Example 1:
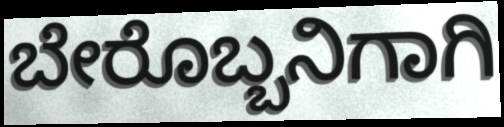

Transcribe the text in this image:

ಬೇರೊಬ್ಬನಿಗಾಗಿ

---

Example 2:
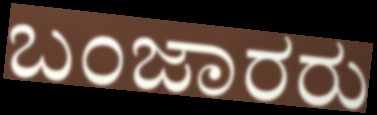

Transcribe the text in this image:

ಬಂಜಾರರು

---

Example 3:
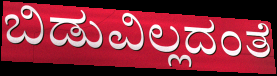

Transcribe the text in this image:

ಬಿಡುವಿಲ್ಲದಂತೆ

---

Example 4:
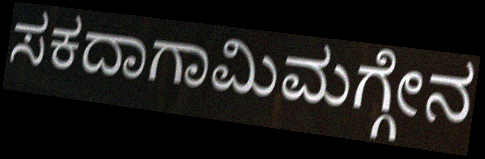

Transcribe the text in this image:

ಸಕದಾಗಾಮಿಮಗ್ಗೇನ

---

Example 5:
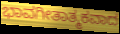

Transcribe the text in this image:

ಭಾವಗೀತಾತ್ಮಕವಾದ